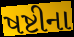
ષષ્ટીના